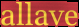
allave